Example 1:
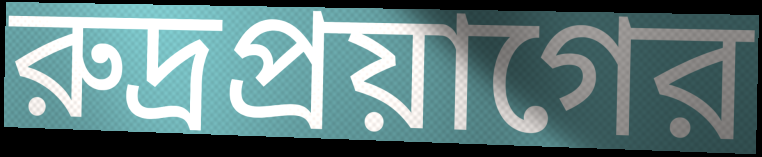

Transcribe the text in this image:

রুদ্রপ্রয়াগের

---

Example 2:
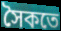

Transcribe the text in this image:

সৈকতে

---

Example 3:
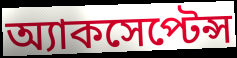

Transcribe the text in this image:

অ্যাকসেপ্টেন্স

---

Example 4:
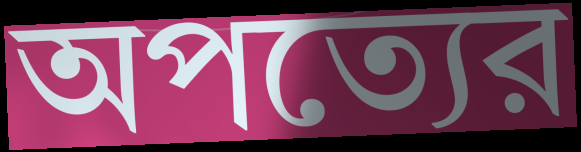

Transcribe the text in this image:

অপত্যের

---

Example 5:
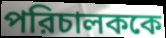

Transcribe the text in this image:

পরিচালককে